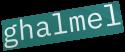
ghalmel